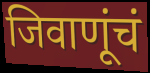
जिवाणूंचं